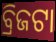
ବ୍ରିଜଟା